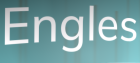
Engles